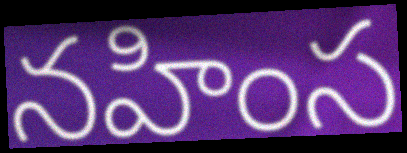
నహింస